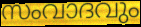
സംവാദവും